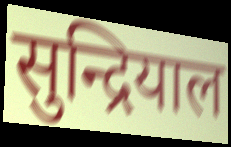
सुन्द्रियाल